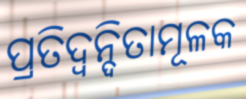
ପ୍ରତିଦ୍ୱନ୍ଦିତାମୂଳକ